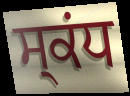
ਸ੍ਕਂਧ